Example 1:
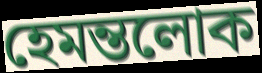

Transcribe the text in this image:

হেমন্তলোক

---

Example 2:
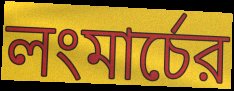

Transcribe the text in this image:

লংমার্চের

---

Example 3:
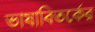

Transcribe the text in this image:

ভাষাবিতর্কের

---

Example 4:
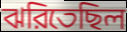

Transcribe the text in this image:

ঝরিতেছিল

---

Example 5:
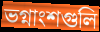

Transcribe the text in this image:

ভগ্নাংশগুলি